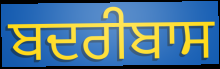
ਬਦਰੀਬਾਸ